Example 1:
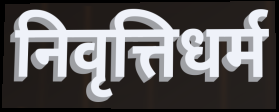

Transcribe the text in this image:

निवृत्तिधर्म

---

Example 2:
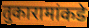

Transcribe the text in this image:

तुकारामांकडे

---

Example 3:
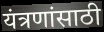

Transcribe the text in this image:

यंत्रणांसाठी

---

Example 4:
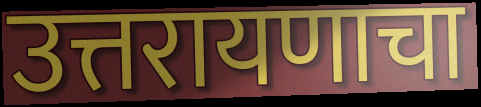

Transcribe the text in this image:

उत्तरायणाचा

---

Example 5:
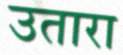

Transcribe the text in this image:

उतारा